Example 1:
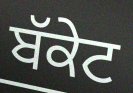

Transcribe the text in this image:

ਬੱਕੇਟ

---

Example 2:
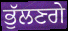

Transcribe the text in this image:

ਭੁੱਲਣਗੇ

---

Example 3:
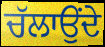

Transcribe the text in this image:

ਚੱਲਾਉਂਦੇ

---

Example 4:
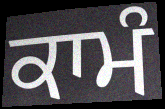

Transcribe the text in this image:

ਕਾਮੰ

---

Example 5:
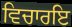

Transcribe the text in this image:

ਵਿਚਾਰਇ